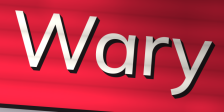
Wary